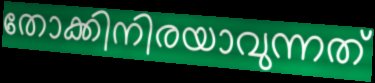
തോക്കിനിരയാവുന്നത്